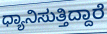
ಧ್ಯಾನಿಸುತ್ತಿದ್ದಾರೆ